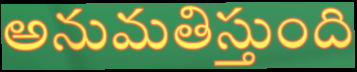
అనుమతిస్తుంది